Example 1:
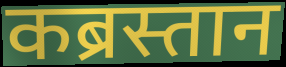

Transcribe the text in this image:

कब्रस्तान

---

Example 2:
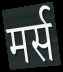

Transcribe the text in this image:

मर्स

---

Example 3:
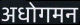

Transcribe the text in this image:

अधोगमन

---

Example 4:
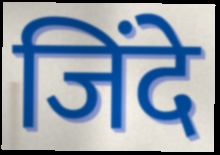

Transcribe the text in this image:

जिंदे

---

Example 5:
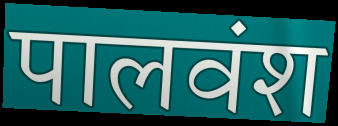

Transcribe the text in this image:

पालवंश